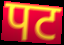
पट